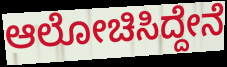
ಆಲೋಚಿಸಿದ್ದೇನೆ